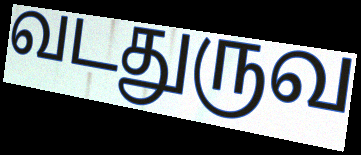
வடதுருவ